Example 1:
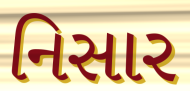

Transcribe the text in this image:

નિસાર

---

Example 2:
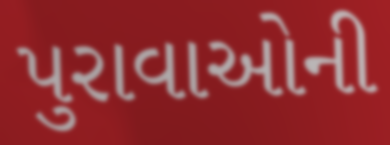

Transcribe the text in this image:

પુરાવાઓની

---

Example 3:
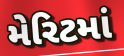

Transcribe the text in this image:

મેરિટમાં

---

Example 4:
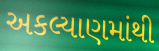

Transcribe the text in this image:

અકલ્યાણમાંથી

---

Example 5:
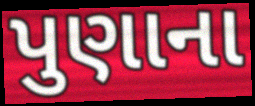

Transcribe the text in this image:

પુણાના